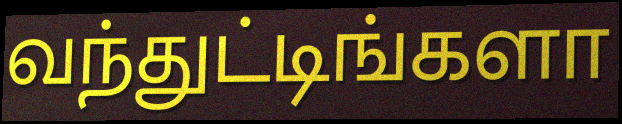
வந்துட்டிங்களா